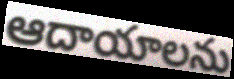
ఆదాయాలను